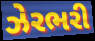
ઝેરભરી